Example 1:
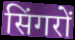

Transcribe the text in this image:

सिंगरों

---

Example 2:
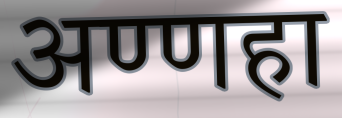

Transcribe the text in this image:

अण्णहा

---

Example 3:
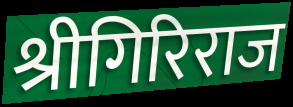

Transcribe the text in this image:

श्रीगिरिराज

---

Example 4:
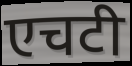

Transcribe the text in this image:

एचटी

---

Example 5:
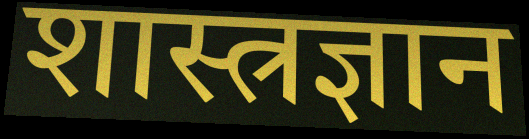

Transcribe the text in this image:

शास्त्रज्ञान